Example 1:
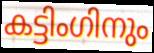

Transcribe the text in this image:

കട്ടിംഗിനും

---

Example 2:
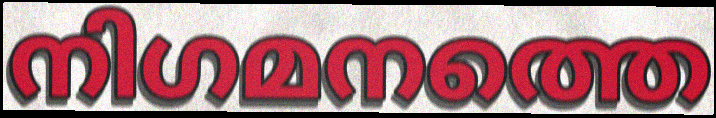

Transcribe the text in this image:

നിഗമനത്തെ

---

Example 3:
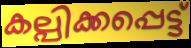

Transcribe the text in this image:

കല്പിക്കപ്പെട്ട്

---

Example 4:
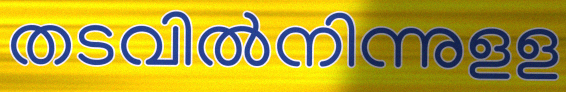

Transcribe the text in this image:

തടവിൽനിന്നുളള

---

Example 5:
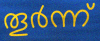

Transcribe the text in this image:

തൂർന്ന്